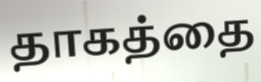
தாகத்தை